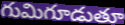
గుమిగూడుతూ